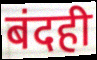
बंदही